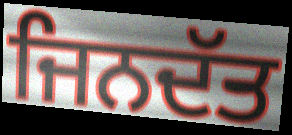
ਜਿਨਦੱਤ